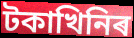
টকাখিনিৰ